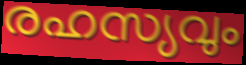
രഹസ്യവും